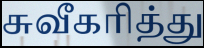
சுவீகரித்து